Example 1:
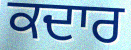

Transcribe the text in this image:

ਕਦਾਰ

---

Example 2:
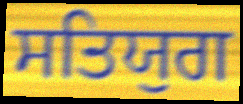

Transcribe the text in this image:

ਸਤਿਯੁਗ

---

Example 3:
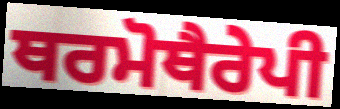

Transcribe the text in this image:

ਥਰਮੋਥੈਰੇਪੀ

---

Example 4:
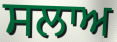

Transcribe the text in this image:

ਸਲਾਅ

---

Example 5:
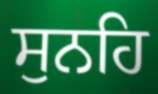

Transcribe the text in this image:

ਸੁਨਹਿ